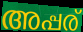
അപ്പര്